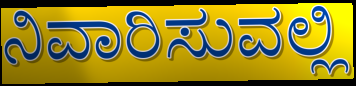
ನಿವಾರಿಸುವಲ್ಲಿ